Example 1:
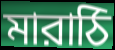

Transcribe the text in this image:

মারাঠি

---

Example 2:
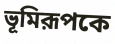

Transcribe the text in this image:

ভূমিরূপকে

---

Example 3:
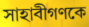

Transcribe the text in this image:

সাহাবীগণকে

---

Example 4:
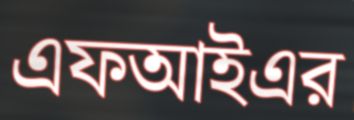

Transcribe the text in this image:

এফআইএর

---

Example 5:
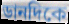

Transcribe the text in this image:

ডানদিকে